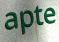
apte